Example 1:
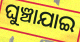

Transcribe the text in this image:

ଘୁଞ୍ଚାଯାଇ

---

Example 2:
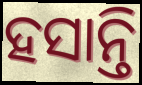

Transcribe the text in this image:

ହସାନ୍ତି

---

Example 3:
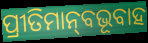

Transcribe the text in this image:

ପ୍ରୀତିମାନ୍‌ବଭୂବାହ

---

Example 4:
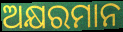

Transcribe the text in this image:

ଅକ୍ଷରମାନ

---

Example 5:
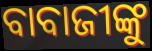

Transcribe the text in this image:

ବାବାଜୀଙ୍କୁ